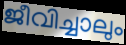
ജീവിച്ചാലും